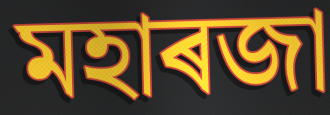
মহাৰজা